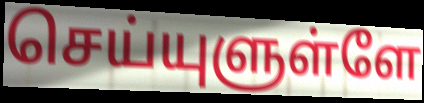
செய்யுளுள்ளே